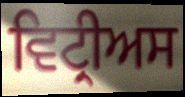
ਵਿਟ੍ਰੀਅਸ